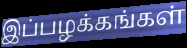
இப்பழக்கங்கள்